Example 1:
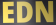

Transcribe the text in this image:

EDN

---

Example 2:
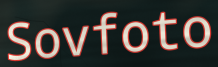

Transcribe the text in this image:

Sovfoto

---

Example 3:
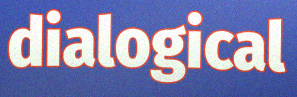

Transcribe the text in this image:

dialogical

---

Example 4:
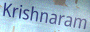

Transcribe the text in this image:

Krishnaram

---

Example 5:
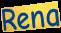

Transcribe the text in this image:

Rena